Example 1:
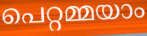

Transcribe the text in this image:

പെറ്റമ്മയാം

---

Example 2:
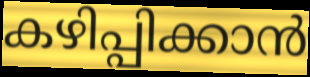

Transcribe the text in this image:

കഴിപ്പിക്കാൻ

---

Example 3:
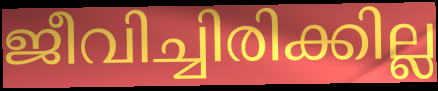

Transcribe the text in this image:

ജീവിച്ചിരിക്കില്ല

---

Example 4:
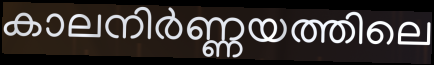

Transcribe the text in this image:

കാലനിർണ്ണയത്തിലെ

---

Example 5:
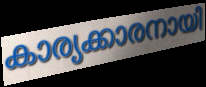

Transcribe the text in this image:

കാര്യക്കാരനായി